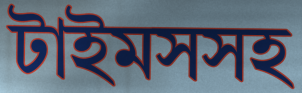
টাইমসসহ